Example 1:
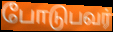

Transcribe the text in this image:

போடுபவர்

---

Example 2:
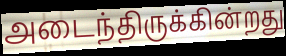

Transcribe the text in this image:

அடைந்திருக்கின்றது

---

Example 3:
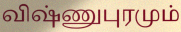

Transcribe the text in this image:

விஷ்ணுபுரமும்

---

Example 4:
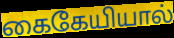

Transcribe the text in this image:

கைகேயியால்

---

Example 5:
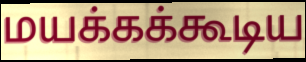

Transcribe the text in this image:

மயக்கக்கூடிய